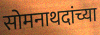
सोमनाथदांच्या